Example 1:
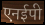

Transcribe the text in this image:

एनईपी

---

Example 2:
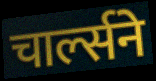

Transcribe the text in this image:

चार्ल्सने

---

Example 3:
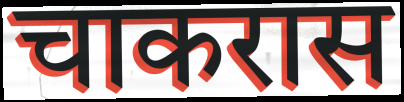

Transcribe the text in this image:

चाकरास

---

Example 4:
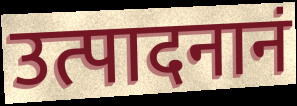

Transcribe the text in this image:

उत्पादनानं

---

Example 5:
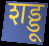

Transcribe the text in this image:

शड्डू